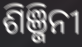
ଶିଞ୍ଜିନୀ